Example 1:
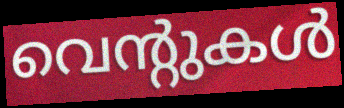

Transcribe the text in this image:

വെന്റുകൾ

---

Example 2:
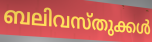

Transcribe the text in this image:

ബലിവസ്തുക്കൾ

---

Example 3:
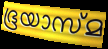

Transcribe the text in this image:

ഭൂയാസ്മ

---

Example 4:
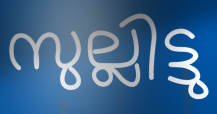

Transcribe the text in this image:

സുല്ലിട്ടു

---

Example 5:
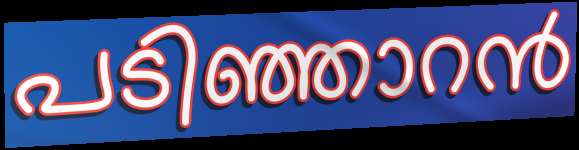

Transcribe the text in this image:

പടിഞ്ഞാറൻ